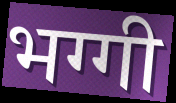
भग्गी